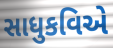
સાધુકવિએ